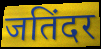
जतिंदर